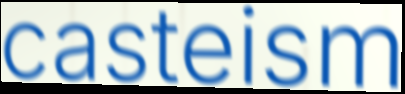
casteism